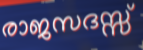
രാജസദസ്സ്